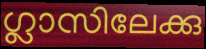
ഗ്ലാസിലേക്കു